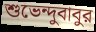
শুভেন্দুবাবুর